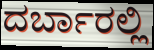
ದರ್ಬಾರಲ್ಲಿ